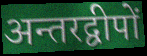
अन्तरद्वीपों